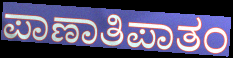
ಪಾಣಾತಿಪಾತಂ